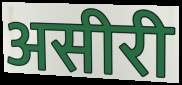
असीरी